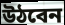
উঠবেন